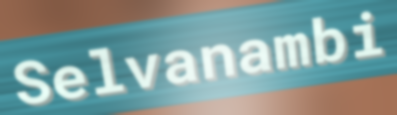
Selvanambi